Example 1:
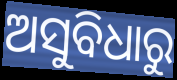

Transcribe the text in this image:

ଅସୁବିଧାରୁ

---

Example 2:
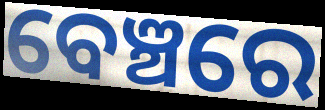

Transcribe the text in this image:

ବେଞ୍ଚରେ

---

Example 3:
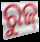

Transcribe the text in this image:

ରୁଜ୍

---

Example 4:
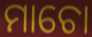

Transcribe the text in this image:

ମାଚୋ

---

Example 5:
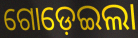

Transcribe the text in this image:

ଗୋଡ଼େଇଲା